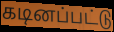
கடினப்பட்டு